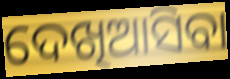
ଦେଖିଆସିବା